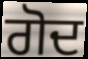
ਗੋਦ